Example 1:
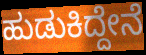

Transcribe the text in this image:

ಹುಡುಕಿದ್ದೇನೆ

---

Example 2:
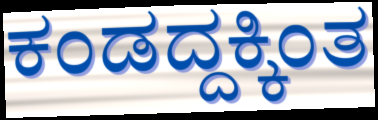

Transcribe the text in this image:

ಕಂಡದ್ದಕ್ಕಿಂತ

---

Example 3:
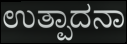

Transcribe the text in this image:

ಉತ್ಪಾದನಾ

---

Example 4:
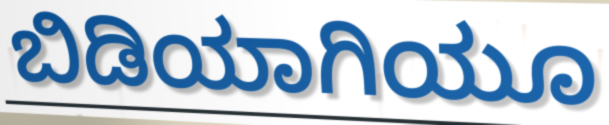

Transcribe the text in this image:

ಬಿಡಿಯಾಗಿಯೂ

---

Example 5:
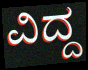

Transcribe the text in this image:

ವಿದ್ದ